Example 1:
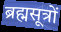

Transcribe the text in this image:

ब्रह्मसूत्रों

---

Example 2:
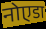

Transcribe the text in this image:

नोएडा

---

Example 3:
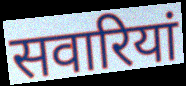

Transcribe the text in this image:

सवारियां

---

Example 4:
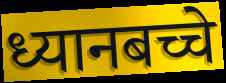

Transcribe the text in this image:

ध्यानबच्चे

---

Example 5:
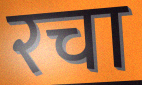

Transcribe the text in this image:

रचा